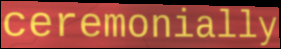
ceremonially